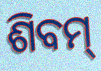
ଶିବମ୍